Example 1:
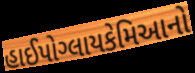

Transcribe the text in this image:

હાઈપોગ્લાયકેમિઆનો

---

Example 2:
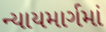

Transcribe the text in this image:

ન્યાયમાર્ગમાં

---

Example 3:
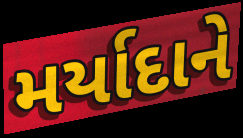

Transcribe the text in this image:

મર્યાદાને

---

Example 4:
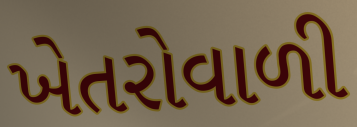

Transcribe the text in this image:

ખેતરોવાળી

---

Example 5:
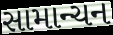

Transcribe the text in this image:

સામાન્ચન